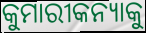
କୁମାରୀକନ୍ୟାକୁ